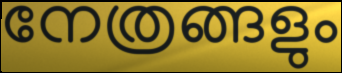
നേത്രങ്ങളും